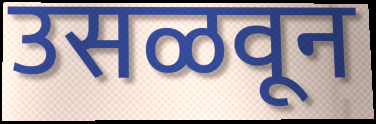
उसळवून